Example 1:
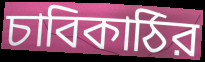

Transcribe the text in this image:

চাবিকাঠির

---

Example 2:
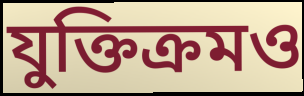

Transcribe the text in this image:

যুক্তিক্রমও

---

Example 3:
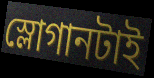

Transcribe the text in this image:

স্লোগানটাই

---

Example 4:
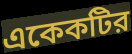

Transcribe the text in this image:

একেকটির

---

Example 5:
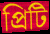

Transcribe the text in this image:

প্রিটি